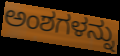
ಅಂಶಗಳನ್ನು